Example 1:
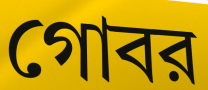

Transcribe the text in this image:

গোবর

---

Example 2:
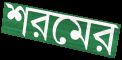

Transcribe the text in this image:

শরমের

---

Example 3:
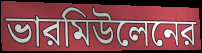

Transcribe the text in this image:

ভারমিউলেনের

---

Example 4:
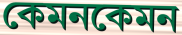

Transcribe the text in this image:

কেমনকেমন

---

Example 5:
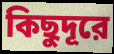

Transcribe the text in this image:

কিছুদূরে